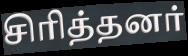
சிரித்தனர்